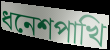
ধনেশপাখি